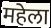
महेला